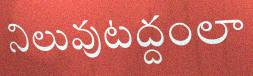
నిలువుటద్దంలా